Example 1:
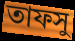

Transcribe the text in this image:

তাফসু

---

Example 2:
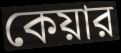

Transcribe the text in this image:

কেয়ার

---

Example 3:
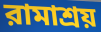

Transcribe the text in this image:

রামাশ্রয়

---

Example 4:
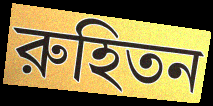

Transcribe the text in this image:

রুহিতন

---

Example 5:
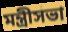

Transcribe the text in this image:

মন্ত্রীসভা